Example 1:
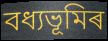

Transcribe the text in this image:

বধ্যভূমিৰ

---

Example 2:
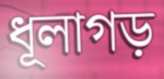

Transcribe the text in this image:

ধূলাগড়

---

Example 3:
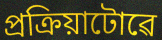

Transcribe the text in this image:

প্ৰক্ৰিয়াটোৱে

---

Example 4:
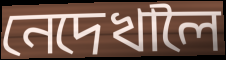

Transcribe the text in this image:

নেদেখালৈ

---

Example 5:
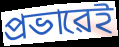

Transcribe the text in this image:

প্ৰভাৱেই